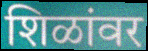
शिळांवर